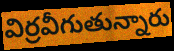
విర్రవీగుతున్నారు